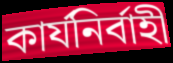
কার্যনির্বাহী